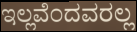
ಇಲ್ಲವೆಂದವರಲ್ಲ